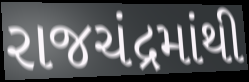
રાજચંદ્રમાંથી